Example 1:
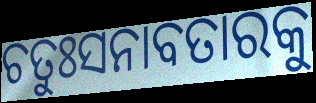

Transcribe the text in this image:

ଚତୁଃସନାବତାରକୁ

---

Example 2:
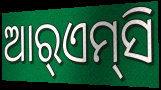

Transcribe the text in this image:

ଆର୍‌ଏମ୍‌ସି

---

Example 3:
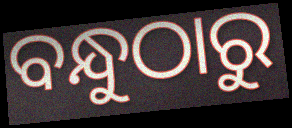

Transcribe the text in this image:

ବନ୍ଧୁଠାରୁ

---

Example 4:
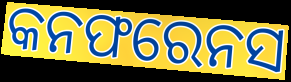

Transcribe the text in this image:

କନଫରେନସ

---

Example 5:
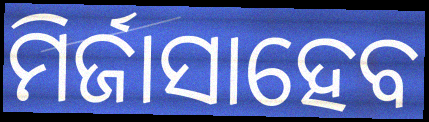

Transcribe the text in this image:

ମିର୍ଜାସାହେବ